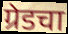
ग्रेडचा